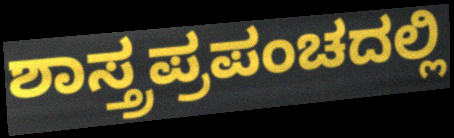
ಶಾಸ್ತ್ರಪ್ರಪಂಚದಲ್ಲಿ